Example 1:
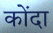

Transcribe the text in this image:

कोंदा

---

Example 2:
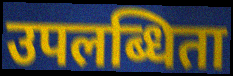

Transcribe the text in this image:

उपलब्धिता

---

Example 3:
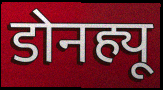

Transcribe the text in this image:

डोनह्यू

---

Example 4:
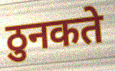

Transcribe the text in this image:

ठुनकते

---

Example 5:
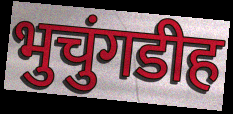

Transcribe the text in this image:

भुचुंगडीह